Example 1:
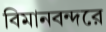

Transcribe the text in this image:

বিমানবন্দরে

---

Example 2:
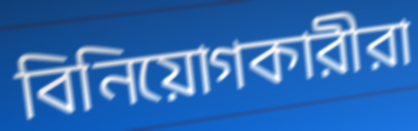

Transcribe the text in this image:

বিনিয়োগকারীরা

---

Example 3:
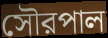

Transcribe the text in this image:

সৌরপাল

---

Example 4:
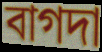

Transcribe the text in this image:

বাগদা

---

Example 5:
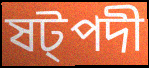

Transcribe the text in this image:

ষট্‌পদী